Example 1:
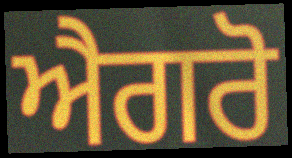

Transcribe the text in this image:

ਐਗਰੋ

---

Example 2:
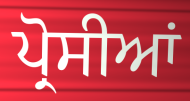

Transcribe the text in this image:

ਪ੍ਰੋਸੀਆਂ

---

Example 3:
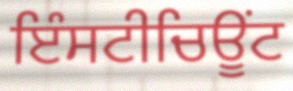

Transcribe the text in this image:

ਇੰਸਟੀਚਿਊਂਟ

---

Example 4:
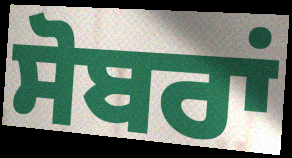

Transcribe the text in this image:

ਸੋਬਰਾਂ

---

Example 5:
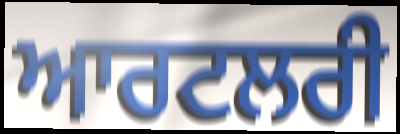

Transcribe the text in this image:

ਆਰਟਲਰੀ